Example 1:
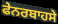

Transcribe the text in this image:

ਫੇਨਰਬਾਹਸੇ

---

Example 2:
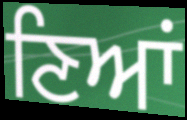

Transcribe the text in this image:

ਣਿਆਂ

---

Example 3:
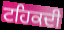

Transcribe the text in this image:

ਟਹਿਕਦੀ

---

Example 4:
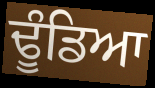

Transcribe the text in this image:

ਢੂੰਡਿਆ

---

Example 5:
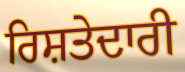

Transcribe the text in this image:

ਰਿਸ਼ਤੇਦਾਰੀ